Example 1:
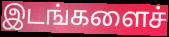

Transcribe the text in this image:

இடங்களைச்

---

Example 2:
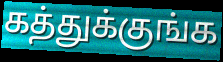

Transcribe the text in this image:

கத்துக்குங்க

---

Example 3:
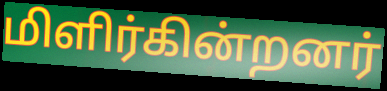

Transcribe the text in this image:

மிளிர்கின்றனர்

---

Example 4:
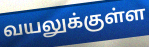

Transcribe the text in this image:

வயலுக்குள்ள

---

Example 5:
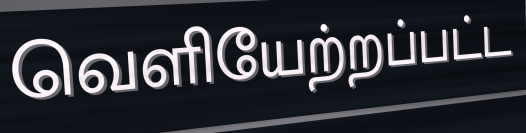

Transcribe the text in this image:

வெளியேற்றப்பட்ட